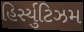
હિર્સ્યુટિઝમ